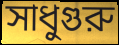
সাধুগুরু